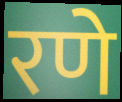
रणे